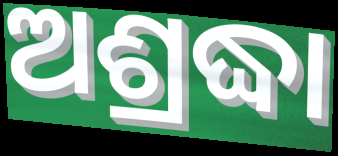
ଅଶ୍ରଦ୍ଧା